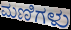
ಮಣಿಗಳು